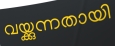
വയ്ക്കുന്നതായി